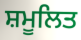
ਸ਼ਮੂਲਿਤ